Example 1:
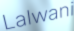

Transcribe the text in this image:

Lalwani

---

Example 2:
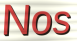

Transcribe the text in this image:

Nos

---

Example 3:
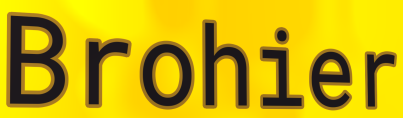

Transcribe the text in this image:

Brohier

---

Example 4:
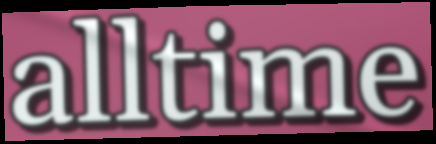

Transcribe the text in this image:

alltime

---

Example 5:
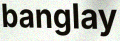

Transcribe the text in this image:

banglay